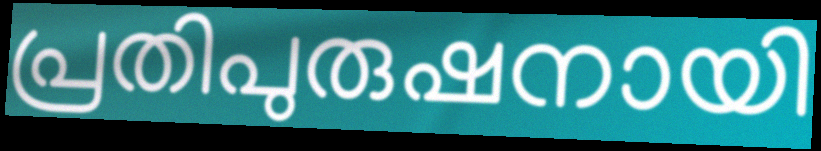
പ്രതിപുരുഷനായി